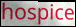
hospice